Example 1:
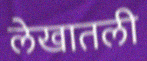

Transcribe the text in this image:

लेखातली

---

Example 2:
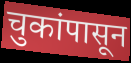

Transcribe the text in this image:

चुकांपासून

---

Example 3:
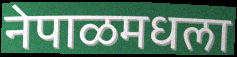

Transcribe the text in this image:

नेपाळमधला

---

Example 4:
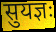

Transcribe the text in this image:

सुयज्ञः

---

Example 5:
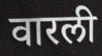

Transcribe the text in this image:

वारली